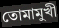
তোমামুখী